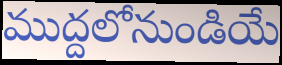
ముద్దలోనుండియే